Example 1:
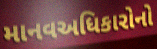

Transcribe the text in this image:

માનવઅધિકારોનો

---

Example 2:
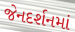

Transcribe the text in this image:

જેનદર્શનમાં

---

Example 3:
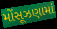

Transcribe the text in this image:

મોંસૂઝણામાં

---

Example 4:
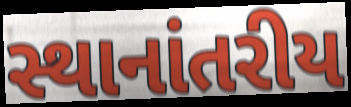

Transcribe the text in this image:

સ્થાનાંતરીય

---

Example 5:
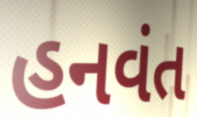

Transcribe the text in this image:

હનવંત